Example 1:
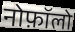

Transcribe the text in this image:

नोफ़ॉलो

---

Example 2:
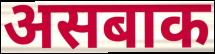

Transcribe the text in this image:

असबाक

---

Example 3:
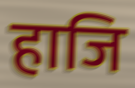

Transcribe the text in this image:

हाजि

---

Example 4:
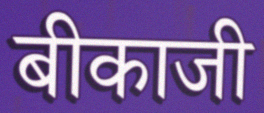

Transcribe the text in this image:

बीकाजी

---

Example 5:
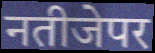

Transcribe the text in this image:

नतीजेपर